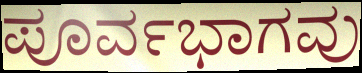
ಪೂರ್ವಭಾಗವು